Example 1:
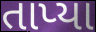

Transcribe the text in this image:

તાપ્યા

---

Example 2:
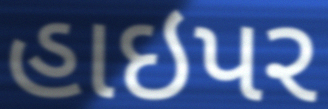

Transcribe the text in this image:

હાઇપર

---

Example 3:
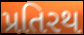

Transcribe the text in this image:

પ્રતિરથ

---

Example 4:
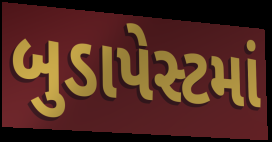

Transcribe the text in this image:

બુડાપેસ્ટમાં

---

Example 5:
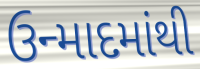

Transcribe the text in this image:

ઉન્માદમાંથી